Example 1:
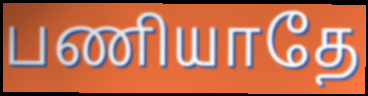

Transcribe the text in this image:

பணியாதே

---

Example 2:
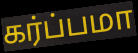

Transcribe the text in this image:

கர்ப்பமா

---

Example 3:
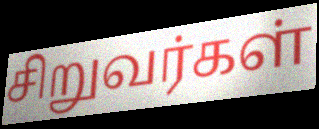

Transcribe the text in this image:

சிறுவர்கள்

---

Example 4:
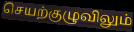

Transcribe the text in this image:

செயற்குழுவிலும்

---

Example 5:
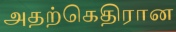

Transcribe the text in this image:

அதற்கெதிரான